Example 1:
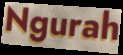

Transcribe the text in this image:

Ngurah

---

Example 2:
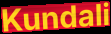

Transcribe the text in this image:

Kundali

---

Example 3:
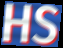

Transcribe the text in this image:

HS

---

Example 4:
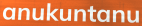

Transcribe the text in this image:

anukuntanu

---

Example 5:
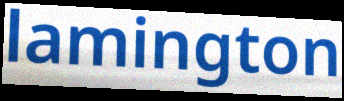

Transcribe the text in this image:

lamington